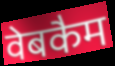
वेबकैम